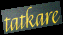
tatkare